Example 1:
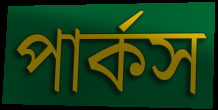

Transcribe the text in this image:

পার্কস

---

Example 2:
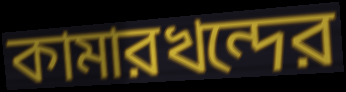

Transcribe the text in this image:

কামারখন্দের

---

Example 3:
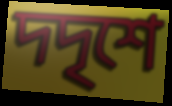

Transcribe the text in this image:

দদৃশে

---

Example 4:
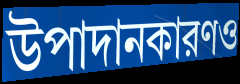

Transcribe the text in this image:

উপাদানকারণও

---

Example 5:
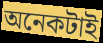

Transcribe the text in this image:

অনেকটাই